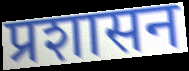
प्रशासन